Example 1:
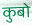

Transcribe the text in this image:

कुबो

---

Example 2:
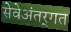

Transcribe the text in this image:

सेवेअंतर्गत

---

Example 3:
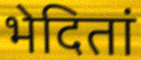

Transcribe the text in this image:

भेदितां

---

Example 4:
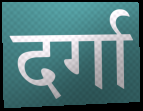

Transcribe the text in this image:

दर्गा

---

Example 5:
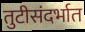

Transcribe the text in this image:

तुटीसंदर्भात